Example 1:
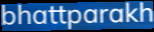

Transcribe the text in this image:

bhattparakh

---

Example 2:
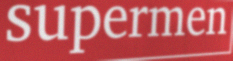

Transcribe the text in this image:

supermen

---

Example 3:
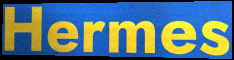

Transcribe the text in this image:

Hermes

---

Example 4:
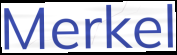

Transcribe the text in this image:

Merkel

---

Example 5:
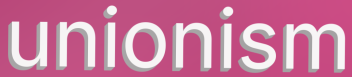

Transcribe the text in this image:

unionism